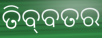
ତିବ୍‌ବତର